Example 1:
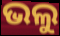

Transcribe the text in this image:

ଭଲୁ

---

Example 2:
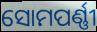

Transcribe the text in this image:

ସୋମପର୍ଣ୍ଣୀ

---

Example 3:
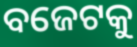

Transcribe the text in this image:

ବଜେଟକୁ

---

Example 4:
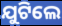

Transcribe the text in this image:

ଯୁଟିଲେ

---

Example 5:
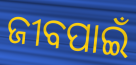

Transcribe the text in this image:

ଜୀବପାଇଁ